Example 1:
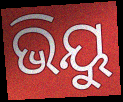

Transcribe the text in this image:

ଭିୟୁ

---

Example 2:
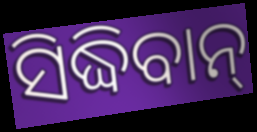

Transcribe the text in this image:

ସିଦ୍ଧିବାନ୍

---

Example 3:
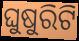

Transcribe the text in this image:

ଘୁଷୁରିଟି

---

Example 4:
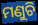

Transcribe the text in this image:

ମଣୁଚି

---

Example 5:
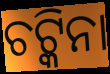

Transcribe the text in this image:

ଚଟ୍କିନା